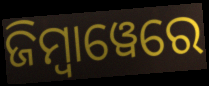
ଜିମ୍ୱାୱେରେ